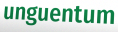
unguentum